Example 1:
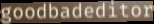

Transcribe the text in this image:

goodbadeditor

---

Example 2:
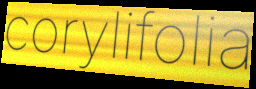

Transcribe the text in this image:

corylifolia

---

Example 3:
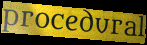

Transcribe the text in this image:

procedural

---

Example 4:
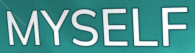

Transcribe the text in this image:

MYSELF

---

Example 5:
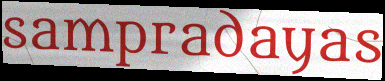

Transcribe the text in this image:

sampradayas